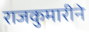
राजकुमारीने